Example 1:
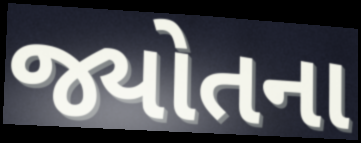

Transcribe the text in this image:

જ્યોતના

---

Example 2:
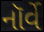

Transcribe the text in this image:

નૉર્વે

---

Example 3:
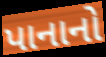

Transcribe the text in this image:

પાનાનો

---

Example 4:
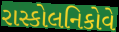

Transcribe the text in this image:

રાસ્કોલનિકોવે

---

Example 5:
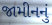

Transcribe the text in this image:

જામીનનું